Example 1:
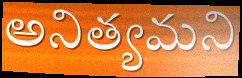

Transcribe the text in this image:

అనిత్యమని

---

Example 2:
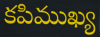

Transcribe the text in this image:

కపిముఖ్య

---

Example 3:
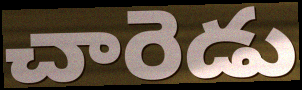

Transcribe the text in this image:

చారెడు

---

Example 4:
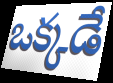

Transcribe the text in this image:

ఒక్కడే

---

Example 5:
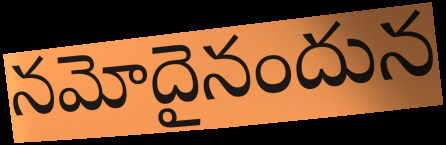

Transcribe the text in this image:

నమోదైనందున